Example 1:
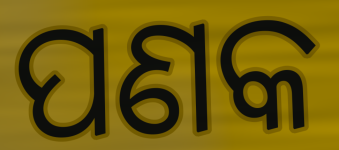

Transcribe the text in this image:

ପଣକ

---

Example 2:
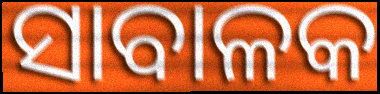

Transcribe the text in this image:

ସାବାଳକ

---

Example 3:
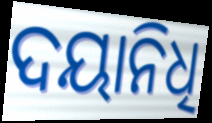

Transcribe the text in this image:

ଦୟାନିଧି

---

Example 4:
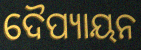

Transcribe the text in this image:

ଦୈପ୍ୟାୟନ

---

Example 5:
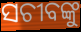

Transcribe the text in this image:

ସଚୀବଙ୍କୁ